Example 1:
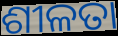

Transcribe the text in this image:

ଶୀଳତା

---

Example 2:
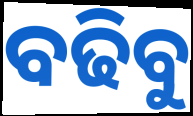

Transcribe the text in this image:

ବଢିବୁ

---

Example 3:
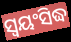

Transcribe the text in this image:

ସ୍ୱୟଂସିଦ୍ଧ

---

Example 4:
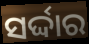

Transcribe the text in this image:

ସର୍ଦ୍ଦାର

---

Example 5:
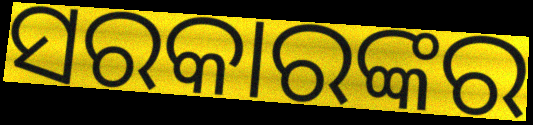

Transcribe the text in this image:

ସରକାରଙ୍କର